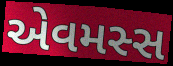
એવમસ્સ